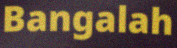
Bangalah